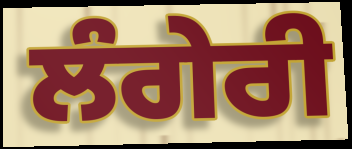
ਲੰਗੇਰੀ